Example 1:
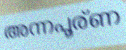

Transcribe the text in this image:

അന്നപൂര്ണ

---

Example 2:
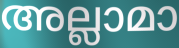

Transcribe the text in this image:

അല്ലാമാ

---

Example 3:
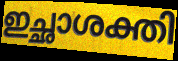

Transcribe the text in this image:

ഇച്ഛാശക്തി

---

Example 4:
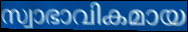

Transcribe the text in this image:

സ്വാഭാവികമായ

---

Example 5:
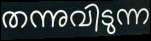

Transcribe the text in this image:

തന്നുവിടുന്ന